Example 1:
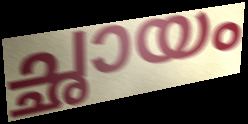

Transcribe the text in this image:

ച്ഛായം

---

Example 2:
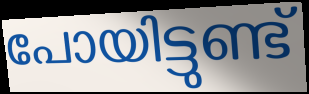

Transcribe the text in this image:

പോയിട്ടുണ്ട്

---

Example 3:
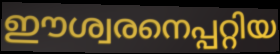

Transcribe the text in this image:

ഈശ്വരനെപ്പറ്റിയ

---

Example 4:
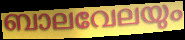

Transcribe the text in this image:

ബാലവേലയും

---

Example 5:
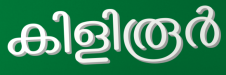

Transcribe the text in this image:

കിളിരൂർ